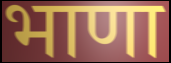
भाणा